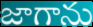
జాగాను